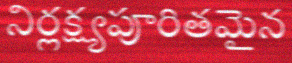
నిర్లక్ష్యపూరితమైన